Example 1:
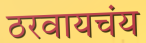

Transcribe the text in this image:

ठरवायचंय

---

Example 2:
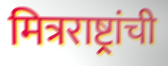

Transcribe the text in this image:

मित्रराष्ट्रांची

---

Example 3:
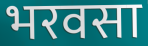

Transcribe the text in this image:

भरवसा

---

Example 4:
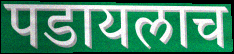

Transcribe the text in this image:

पडायलाच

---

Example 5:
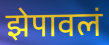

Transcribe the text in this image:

झेपावलं